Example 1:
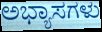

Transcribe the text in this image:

ಅಭ್ಯಾಸಗಳು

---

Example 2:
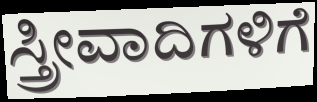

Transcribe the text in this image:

ಸ್ತ್ರೀವಾದಿಗಳಿಗೆ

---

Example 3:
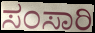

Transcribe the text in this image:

ಸಂಸಾರಿ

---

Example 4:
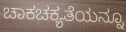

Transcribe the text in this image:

ಚಾಕಚಕ್ಯತೆಯನ್ನೂ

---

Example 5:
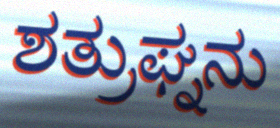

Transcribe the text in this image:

ಶತ್ರುಘ್ನನು